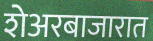
शेअरबाजारात